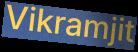
Vikramjit